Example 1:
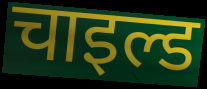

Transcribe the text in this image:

चाइल्ड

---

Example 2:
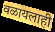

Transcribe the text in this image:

वळायलाही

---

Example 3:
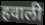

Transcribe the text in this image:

हवाली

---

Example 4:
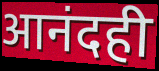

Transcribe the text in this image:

आनंदही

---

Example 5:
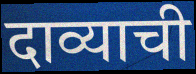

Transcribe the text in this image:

दाव्याची